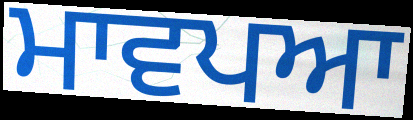
ਮਾਵਪਆ